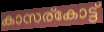
കാസര്കോട്ട്